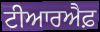
ਟੀਆਰਐਫ਼